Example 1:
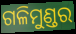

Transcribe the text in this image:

ଗଳିମୁଣ୍ଡର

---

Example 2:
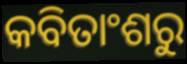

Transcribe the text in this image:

କବିତାଂଶରୁ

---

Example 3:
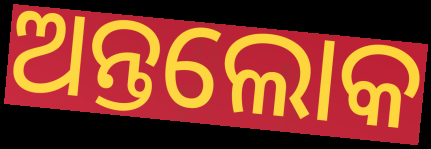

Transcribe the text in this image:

ଅନ୍ତଲୋକ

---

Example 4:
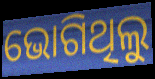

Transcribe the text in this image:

ଭୋଗିଥିଲୁ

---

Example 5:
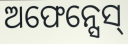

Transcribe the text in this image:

ଅଫେନ୍ସେସ୍